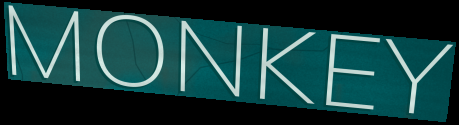
MONKEY